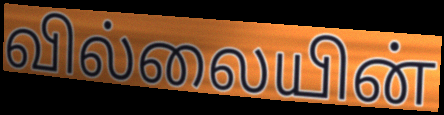
வில்லையின்